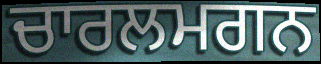
ਚਾਰਲਮਗਨ